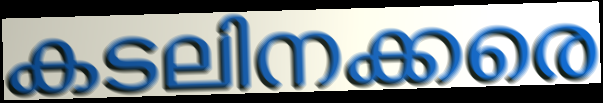
കടലിനക്കരെ